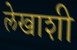
लेखाशी